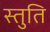
स्तुति